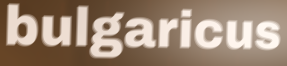
bulgaricus